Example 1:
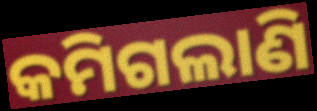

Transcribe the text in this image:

କମିଗଲାଣି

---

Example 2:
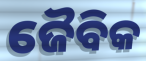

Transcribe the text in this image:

ଜୈବିକ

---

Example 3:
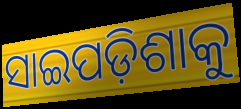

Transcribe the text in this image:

ସାଇପଡ଼ିଶାକୁ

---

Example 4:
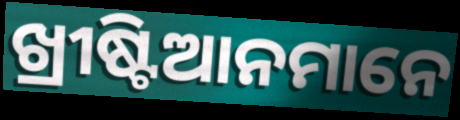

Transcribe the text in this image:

ଖ୍ରୀଷ୍ଟିଆନମାନେ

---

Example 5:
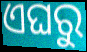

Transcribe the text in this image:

ଏଘରୁ